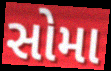
સોમા